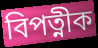
বিপত্নীক